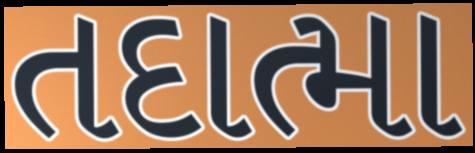
તદાત્મા